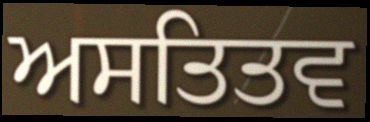
ਅਸਤਿਤਵ